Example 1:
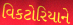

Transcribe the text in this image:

વિકટોરિયાને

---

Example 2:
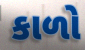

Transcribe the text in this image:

કાળો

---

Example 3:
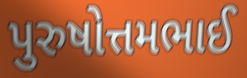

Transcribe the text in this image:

પુરુષોત્તમભાઈ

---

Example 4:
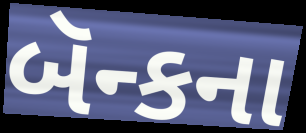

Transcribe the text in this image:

બૅન્કના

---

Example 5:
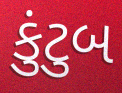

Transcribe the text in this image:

કુંટુબ